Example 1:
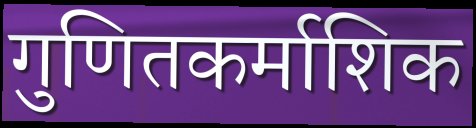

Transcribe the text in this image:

गुणितकर्माशिक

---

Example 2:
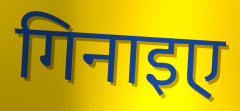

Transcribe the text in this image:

गिनाइए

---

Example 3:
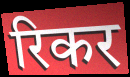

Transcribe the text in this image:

रिकर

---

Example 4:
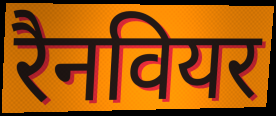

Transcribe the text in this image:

रैनवियर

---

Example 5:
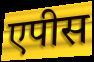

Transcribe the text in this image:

एपीस